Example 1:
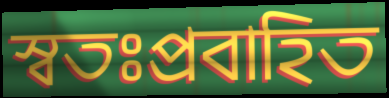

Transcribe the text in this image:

স্বতঃপ্রবাহিত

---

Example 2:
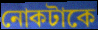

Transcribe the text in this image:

নোকটাকে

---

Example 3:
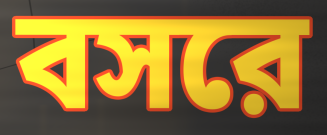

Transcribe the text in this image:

বসরে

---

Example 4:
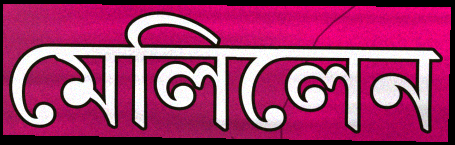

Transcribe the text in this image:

মেলিলেন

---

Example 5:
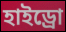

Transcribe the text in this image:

হাইড্রো